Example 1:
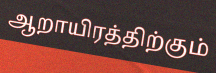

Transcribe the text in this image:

ஆறாயிரத்திற்கும்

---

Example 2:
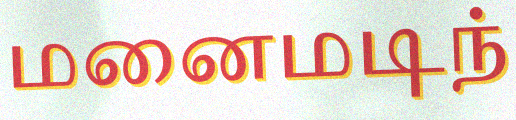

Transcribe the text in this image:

மனைமடிந்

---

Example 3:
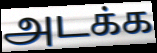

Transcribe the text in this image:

அடக்க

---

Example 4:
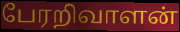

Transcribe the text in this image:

பேரறிவாளன்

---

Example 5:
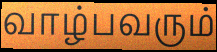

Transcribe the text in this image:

வாழ்பவரும்